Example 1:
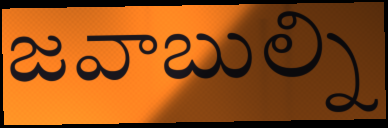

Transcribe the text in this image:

జవాబుల్ని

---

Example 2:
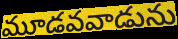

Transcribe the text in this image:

మూడవవాడును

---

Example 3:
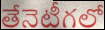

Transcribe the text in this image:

తేనెటీగలో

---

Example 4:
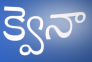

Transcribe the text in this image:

క్వెనా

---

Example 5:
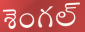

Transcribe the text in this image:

శెంగల్